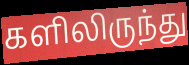
களிலிருந்து